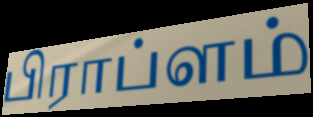
பிராப்ளம்